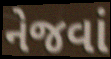
નેજવાં